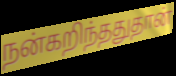
நன்கறிந்ததுதான்